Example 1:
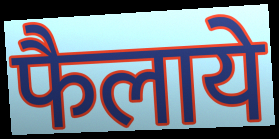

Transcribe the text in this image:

फैलाये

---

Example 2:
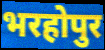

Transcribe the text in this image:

भरहोपुर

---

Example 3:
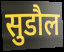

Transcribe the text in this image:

सुडौल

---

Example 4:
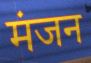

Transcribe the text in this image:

मंजन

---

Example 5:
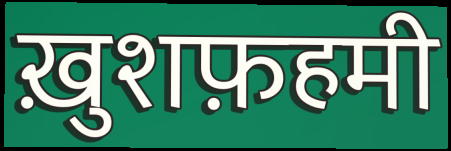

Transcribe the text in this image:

ख़ुशफ़हमी